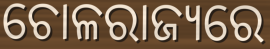
ଚୋଳରାଜ୍ୟରେ